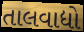
તાલવાદ્યો